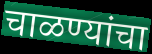
चाळण्यांचा